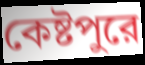
কেষ্টপুরে